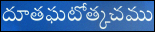
దూతఘటోత్కచము